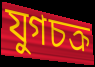
যুগচক্র